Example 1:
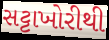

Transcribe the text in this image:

સટ્ટાખોરીથી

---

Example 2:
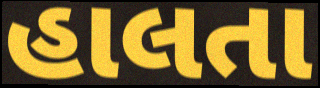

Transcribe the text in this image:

હાલતા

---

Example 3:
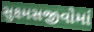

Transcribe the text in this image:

સુક્ષ્મસજીવોમાં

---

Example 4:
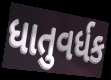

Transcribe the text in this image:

ધાતુવર્ધક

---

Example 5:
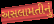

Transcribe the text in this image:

અસલામતીનું